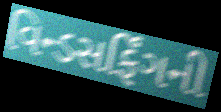
વિન્ડસર્ફિંગની